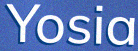
Yosia